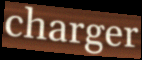
charger